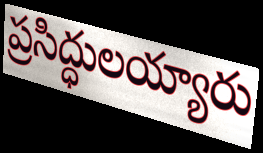
ప్రసిద్ధులయ్యారు